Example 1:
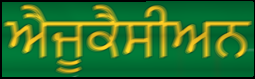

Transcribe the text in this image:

ਐਜੂਕੈਸੀਅਨ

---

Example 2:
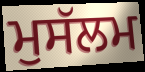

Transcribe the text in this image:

ਮੁਸੱਲਮ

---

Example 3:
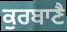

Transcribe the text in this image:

ਕੁਰਬਾਣੈ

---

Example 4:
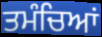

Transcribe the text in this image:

ਤਮੰਚਿਆਂ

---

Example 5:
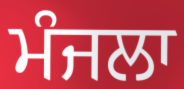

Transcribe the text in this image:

ਮੰਜਲਾ